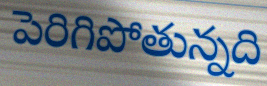
పెరిగిపోతున్నది